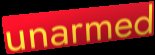
unarmed